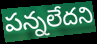
పన్నలేదని